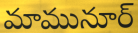
మామునూర్